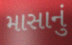
માસાનું